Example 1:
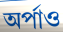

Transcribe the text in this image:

অর্পাও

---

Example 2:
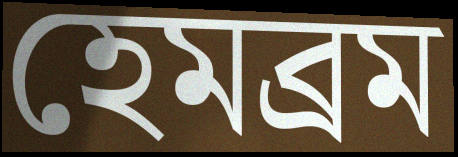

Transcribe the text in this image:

হেমব্রম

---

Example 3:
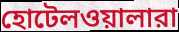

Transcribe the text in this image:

হোটেলওয়ালারা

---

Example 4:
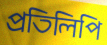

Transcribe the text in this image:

প্রতিলিপি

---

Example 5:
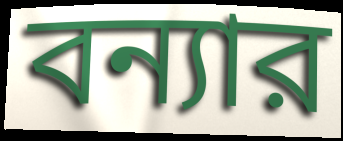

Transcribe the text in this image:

বন্যার